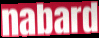
nabard